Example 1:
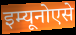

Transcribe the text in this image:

इम्यूनोएसे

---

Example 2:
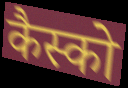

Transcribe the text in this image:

कैस्को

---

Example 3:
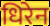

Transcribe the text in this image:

धिरेन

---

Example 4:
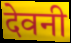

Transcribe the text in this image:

देवनी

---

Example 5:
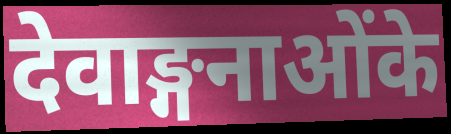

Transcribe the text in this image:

देवाङ्गनाओंके